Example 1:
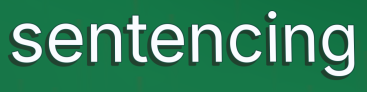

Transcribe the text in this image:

sentencing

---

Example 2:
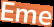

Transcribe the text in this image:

Eme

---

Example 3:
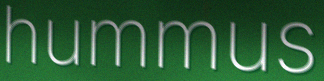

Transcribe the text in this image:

hummus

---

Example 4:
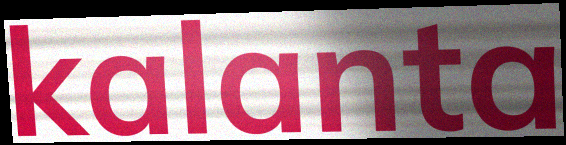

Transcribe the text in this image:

kalanta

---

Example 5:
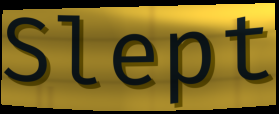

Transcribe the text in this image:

Slept